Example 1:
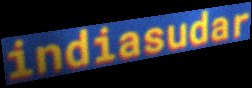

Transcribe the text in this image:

indiasudar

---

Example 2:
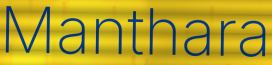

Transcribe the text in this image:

Manthara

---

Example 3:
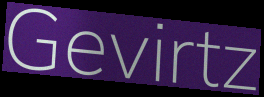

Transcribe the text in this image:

Gevirtz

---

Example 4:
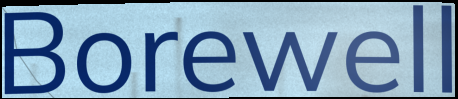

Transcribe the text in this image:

Borewell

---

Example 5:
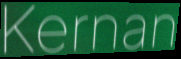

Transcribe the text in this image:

Kernan